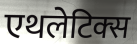
एथलेटिक्‍स